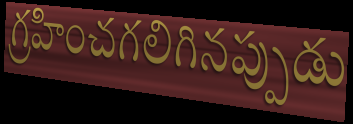
గ్రహించగలిగినప్పుడు